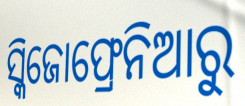
ସ୍କିଜୋଫ୍ରେନିଆରୁ